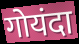
गोयंदा